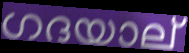
ഗദയാല്